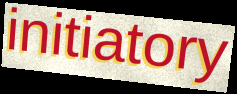
initiatory